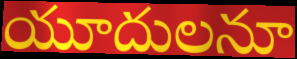
యూదులనూ